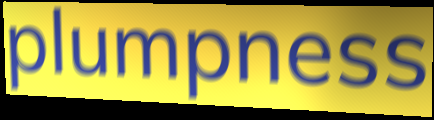
plumpness